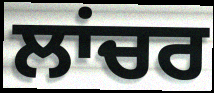
ਲਾਂਚਰ